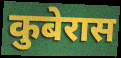
कुबेरास